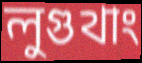
লুগুথাং